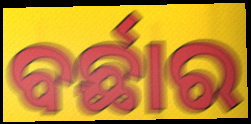
ବର୍ଛାର